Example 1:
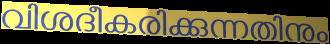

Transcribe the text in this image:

വിശദീകരിക്കുന്നതിനും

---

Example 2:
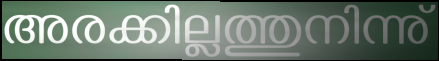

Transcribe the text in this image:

അരക്കില്ലത്തുനിന്നു്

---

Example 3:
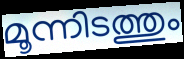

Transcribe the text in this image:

മൂന്നിടത്തും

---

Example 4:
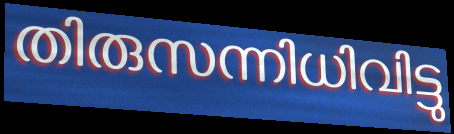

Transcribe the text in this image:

തിരുസന്നിധിവിട്ടു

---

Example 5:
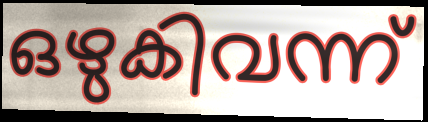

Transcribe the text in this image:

ഒഴുകിവന്ന്